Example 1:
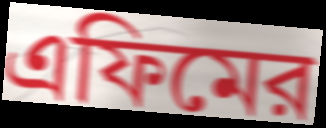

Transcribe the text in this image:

এফিমের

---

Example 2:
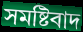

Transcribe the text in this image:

সমষ্টিবাদ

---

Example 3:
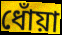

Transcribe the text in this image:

ধোঁয়া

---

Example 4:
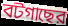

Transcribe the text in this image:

বটগাছের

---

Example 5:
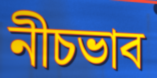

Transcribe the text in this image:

নীচভাব